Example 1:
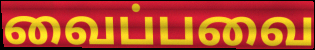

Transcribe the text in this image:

வைப்பவை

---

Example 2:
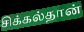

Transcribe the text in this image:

சிக்கல்தான்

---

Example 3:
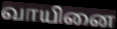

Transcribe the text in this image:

வாயினை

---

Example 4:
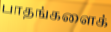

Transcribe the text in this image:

பாதங்களைக்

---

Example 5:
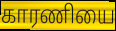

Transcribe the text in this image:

காரணியை